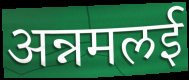
अन्नमलई